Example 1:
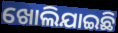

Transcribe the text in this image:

ଖୋଲିଯାଇଛି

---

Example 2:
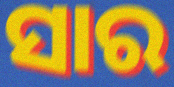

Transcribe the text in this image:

ସାର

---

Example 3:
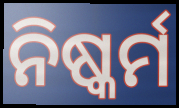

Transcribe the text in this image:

ନିଷ୍କର୍ମ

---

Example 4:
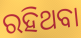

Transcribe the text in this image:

ରହିଥବା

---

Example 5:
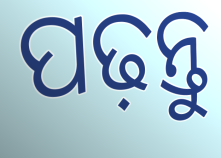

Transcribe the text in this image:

ପଢ଼ନ୍ତୁ